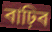
বাঢ়িব